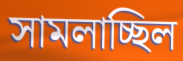
সামলাচ্ছিল